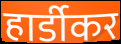
हार्डीकर